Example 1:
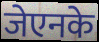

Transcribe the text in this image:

जेएनके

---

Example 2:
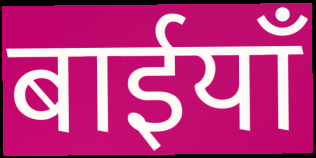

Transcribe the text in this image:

बाईयाँ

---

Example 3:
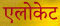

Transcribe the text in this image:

एलोकेट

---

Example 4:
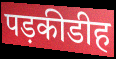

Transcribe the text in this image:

पड़कीडीह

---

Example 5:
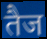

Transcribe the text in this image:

तैज